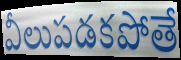
వీలుపడకపోతే